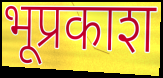
भूप्रकाश